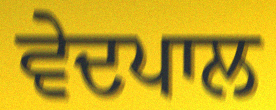
ਵੇਦਪਾਲ